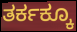
ತರ್ಕಕ್ಕೂ